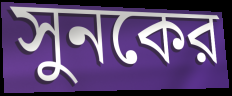
সুনকের